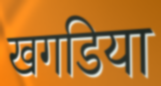
खगडिया